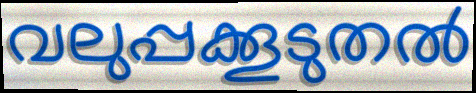
വലുപ്പക്കൂടുതൽ